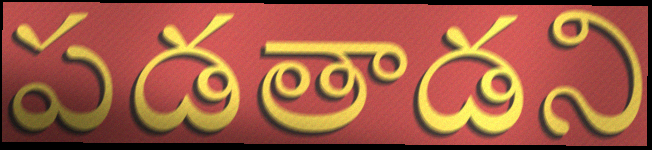
పడతాడని